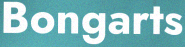
Bongarts